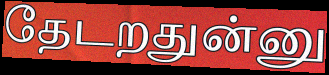
தேடறதுன்னு